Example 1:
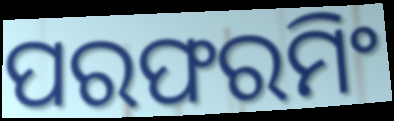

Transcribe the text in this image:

ପରଫରମିଂ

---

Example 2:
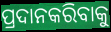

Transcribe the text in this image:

ପ୍ରଦାନକରିବାକୁ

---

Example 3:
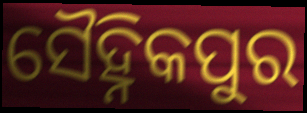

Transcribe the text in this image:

ସୈହ୍ନିକପୁର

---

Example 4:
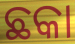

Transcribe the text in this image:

ଛକା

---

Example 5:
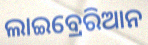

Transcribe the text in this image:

ଲାଇବ୍ରେରିଆନ